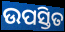
ଉପସ୍ତିତ